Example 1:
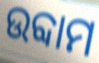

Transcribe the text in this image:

ଉବ୍ଦାମ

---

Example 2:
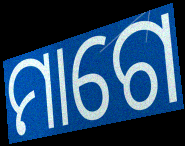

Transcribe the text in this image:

ମାଗେ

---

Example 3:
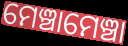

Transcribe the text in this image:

ମେଞ୍ଚାମେଞ୍ଚା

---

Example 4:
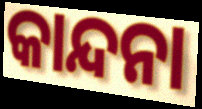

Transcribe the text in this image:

କାନ୍ଦନା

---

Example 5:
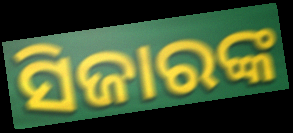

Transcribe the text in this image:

ସିଜାରଙ୍କ